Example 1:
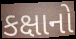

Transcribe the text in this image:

કક્ષાનો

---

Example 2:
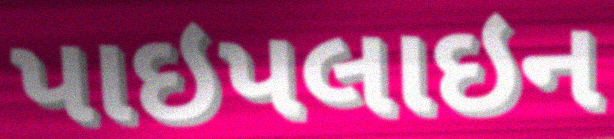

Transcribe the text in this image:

પાઇપલાઇન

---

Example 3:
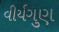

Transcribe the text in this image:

વીર્યગુણ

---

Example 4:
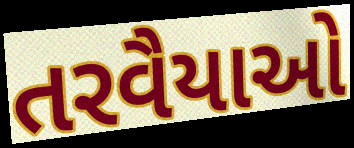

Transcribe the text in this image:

તરવૈયાઓ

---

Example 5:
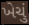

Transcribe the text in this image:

ખેચું